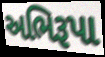
અભિરૂપા